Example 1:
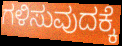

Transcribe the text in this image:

ಗಳಿಸುವುದಕ್ಕೆ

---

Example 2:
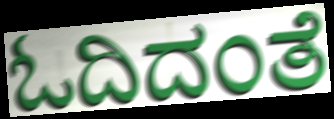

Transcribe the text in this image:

ಓದಿದಂತೆ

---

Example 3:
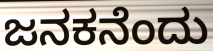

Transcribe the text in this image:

ಜನಕನೆಂದು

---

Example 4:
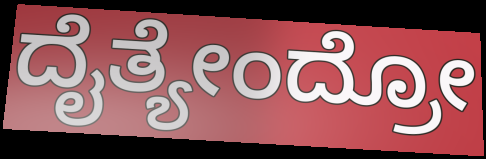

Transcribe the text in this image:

ದೈತ್ಯೇಂದ್ರೋ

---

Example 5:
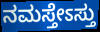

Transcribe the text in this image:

ನಮಸ್ತೇಽಸ್ತು